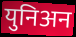
युनिअन